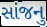
સાંજનુ